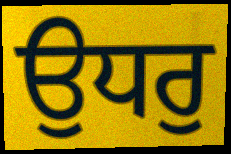
ਉਧਰੁ